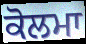
ਕੋਲਮਾ